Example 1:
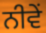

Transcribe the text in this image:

ਨੀਵੇਂ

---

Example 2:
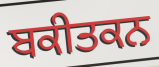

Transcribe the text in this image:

ਬਕੀਤਕਨ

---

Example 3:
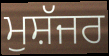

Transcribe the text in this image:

ਮੁਸ਼ੱਜਰ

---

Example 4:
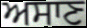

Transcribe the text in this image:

ਅਸਾਣ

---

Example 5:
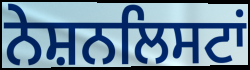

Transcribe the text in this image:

ਨੇਸ਼ਨਲਿਸਟਾਂ